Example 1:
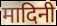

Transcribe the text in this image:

मादिनी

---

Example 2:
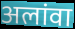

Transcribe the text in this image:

अलांवा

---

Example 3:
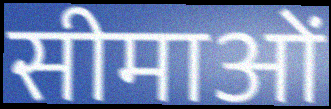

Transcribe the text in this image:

सीमाओं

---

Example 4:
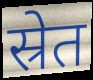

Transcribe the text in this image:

स्रेत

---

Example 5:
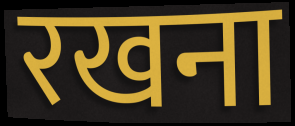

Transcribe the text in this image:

रखना